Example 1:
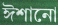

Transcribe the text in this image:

ঈশানো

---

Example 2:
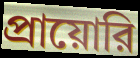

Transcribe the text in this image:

প্রায়োরি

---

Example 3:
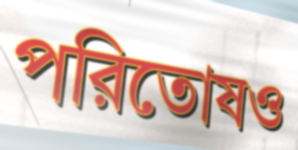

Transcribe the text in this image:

পরিতোষও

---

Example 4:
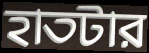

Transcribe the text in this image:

হাতটার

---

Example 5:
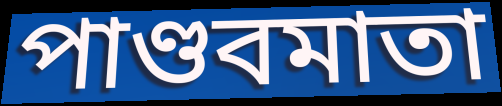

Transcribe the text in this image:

পাণ্ডবমাতা